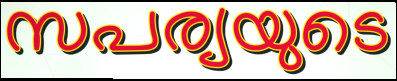
സപര്യയുടെ